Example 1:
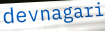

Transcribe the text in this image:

devnagari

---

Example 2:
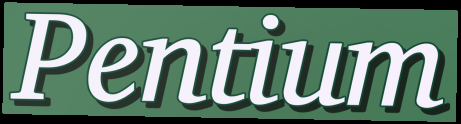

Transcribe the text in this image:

Pentium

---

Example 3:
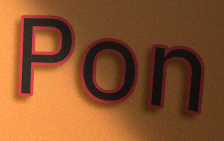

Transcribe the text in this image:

Pon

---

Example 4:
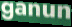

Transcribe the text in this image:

ganun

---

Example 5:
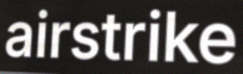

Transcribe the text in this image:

airstrike